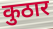
कुठार